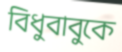
বিধুবাবুকে